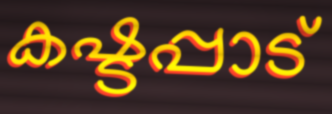
കഷ്ടപ്പാട്